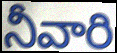
నీవారి